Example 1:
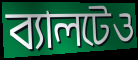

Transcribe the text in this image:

ব্যালটেও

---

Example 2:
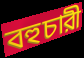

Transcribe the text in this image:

বহুচারী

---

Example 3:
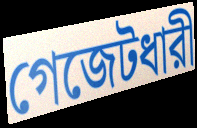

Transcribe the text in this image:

গেজেটধারী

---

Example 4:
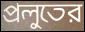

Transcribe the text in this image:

প্রলুতের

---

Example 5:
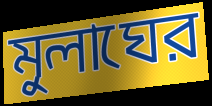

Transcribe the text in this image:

মুলাঘের